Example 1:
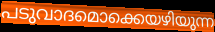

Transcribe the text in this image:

പടുവാദമൊക്കെയഴിയുന്ന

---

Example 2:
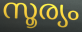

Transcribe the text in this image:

സൂര്യം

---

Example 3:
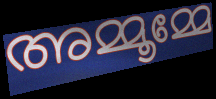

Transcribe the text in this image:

അമ്മൂമ്മേ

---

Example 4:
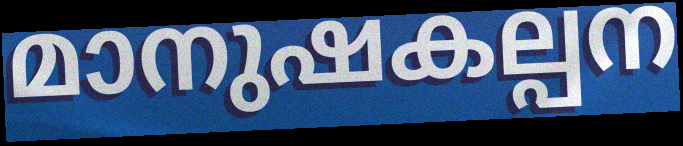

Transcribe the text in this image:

മാനുഷകല്പന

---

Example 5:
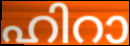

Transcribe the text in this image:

ഹിറാ